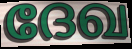
ദേഖ